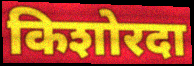
किशोरदा